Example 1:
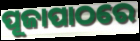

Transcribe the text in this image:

ପୂଜାପାଠରେ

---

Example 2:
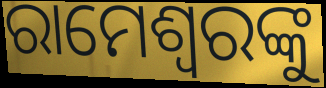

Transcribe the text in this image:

ରାମେଶ୍ୱରଙ୍କୁ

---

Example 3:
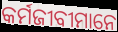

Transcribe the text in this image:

କର୍ମଜୀବୀମାନେ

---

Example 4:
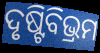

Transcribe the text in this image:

ଦୃଷ୍ଟିବିଭ୍ରମ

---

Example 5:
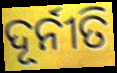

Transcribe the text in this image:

ଦୂର୍ନୀତି